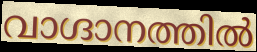
വാഗ്ദാനത്തിൽ